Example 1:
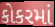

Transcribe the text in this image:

કોકરમાં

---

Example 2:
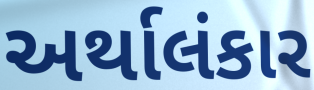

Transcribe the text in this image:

અર્થાલંકાર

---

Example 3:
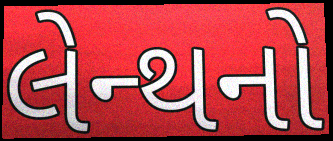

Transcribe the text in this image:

લેન્થનો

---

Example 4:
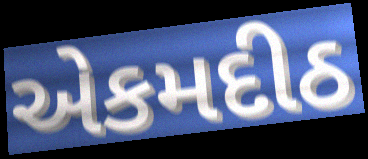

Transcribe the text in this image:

એકમદીઠ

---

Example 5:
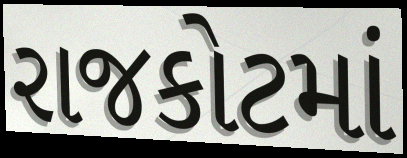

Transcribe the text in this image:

રાજકોટમાં